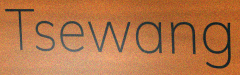
Tsewang